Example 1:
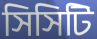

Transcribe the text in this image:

সিসিটি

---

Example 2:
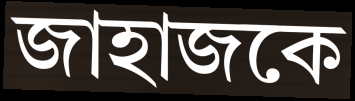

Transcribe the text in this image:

জাহাজকে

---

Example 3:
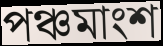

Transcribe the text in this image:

পঞ্চমাংশ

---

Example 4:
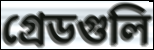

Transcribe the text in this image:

গ্রেডগুলি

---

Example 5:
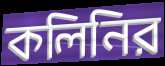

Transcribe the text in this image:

কলিনির